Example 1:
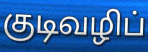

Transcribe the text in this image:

குடிவழிப்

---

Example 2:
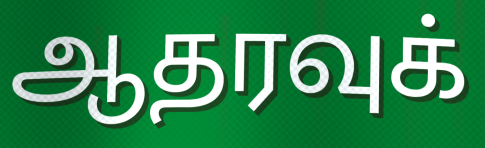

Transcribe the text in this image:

ஆதரவுக்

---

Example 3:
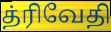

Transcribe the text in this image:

த்ரிவேதி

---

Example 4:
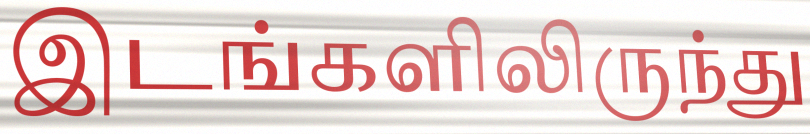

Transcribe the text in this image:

இடங்களிலிருந்து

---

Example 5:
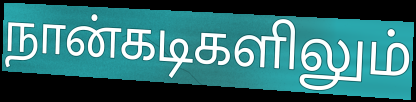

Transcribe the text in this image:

நான்கடிகளிலும்